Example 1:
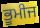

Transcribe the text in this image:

ਭੂਮੀਜ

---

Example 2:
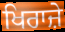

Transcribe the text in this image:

ਖਿਰਾਜ਼ੇ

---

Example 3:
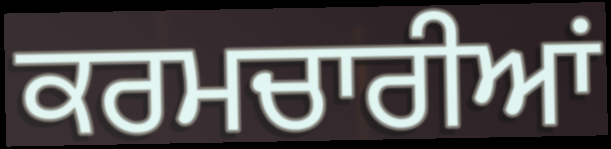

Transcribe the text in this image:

ਕਰਮਚਾਰੀਆਂ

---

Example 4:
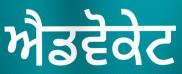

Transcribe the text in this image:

ਐਡਵੋਕੇਟ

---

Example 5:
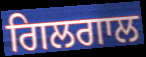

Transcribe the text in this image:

ਗਿਲਗਾਲ